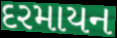
દરમાયન